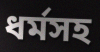
ধর্মসহ